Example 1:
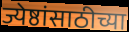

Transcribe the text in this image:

ज्येष्ठांसाठीच्या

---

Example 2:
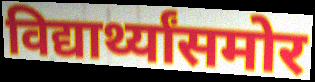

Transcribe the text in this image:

विद्यार्थ्यांसमोर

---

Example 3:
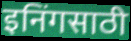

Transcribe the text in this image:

इनिंगसाठी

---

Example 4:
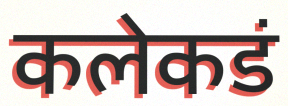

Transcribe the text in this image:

कलेकडं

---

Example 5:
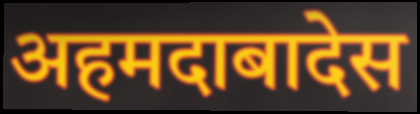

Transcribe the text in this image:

अहमदाबादेस